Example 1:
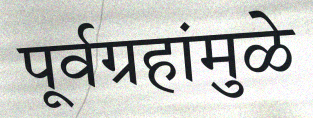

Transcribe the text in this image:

पूर्वग्रहांमुळे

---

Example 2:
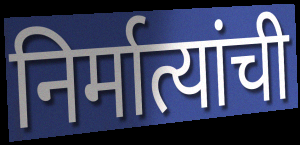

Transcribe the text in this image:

निर्मात्यांची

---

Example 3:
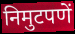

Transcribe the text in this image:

निमुटपणें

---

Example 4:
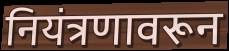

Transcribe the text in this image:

नियंत्रणावरून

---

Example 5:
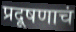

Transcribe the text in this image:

प्रदूषणाचं